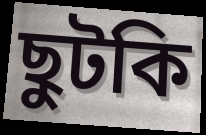
ছুটকি